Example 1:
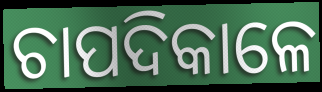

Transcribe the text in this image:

ଚାପଦିକାଳେ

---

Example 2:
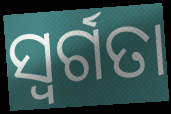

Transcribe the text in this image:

ସ୍ୱର୍ଗତା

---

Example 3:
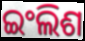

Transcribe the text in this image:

ଇଂଲିଶ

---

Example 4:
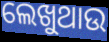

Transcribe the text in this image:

ଲେଖୁଥାଉ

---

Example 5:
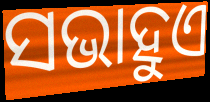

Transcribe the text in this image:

ସଭାହୁଏ